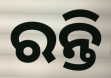
ରନ୍ତି